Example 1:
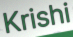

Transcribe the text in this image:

Krishi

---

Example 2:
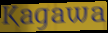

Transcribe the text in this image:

Kagawa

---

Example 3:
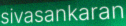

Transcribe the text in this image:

sivasankaran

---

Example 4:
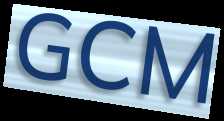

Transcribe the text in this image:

GCM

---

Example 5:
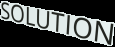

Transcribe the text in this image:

SOLUTION